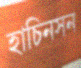
হাচিনসন